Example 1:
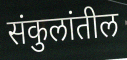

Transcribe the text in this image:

संकुलांतील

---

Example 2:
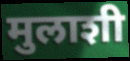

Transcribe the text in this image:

मुलाशी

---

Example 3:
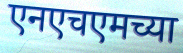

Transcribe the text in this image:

एनएचएमच्या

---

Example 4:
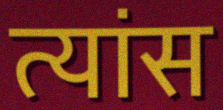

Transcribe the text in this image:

त्यांस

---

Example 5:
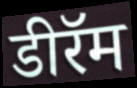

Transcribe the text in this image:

डीरॅम